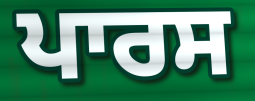
ਪਾਰਸ